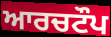
ਆਰਚਟੌਪ